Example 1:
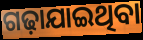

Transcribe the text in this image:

ଗଢ଼ାଯାଇଥିବା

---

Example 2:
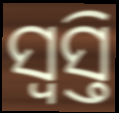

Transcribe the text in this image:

ସ୍ଵସ୍ତି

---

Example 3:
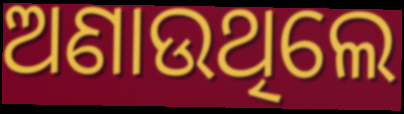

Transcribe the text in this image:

ଅଣାଉଥିଲେ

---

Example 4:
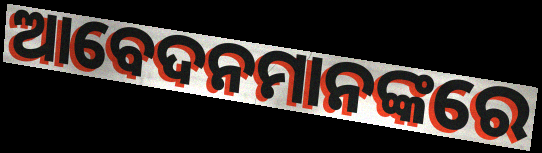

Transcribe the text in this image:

ଆବେଦନମାନଙ୍କରେ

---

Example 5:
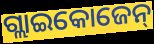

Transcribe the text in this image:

ଗ୍ଲାଇକୋଜେନ୍